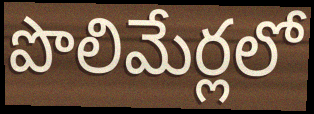
పొలిమేర్లలో